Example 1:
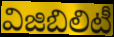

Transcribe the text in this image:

విజిబిలిటీ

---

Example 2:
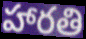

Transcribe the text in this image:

హారతి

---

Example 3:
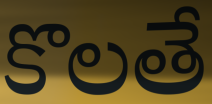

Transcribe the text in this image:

కొలతే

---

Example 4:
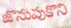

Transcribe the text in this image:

జొనుపుకొని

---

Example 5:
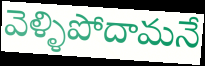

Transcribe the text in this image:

వెళ్ళిపోదామనే